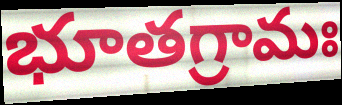
భూతగ్రామః